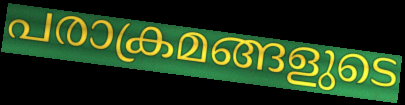
പരാക്രമങ്ങളുടെ